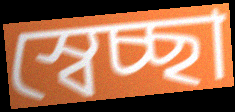
স্বেচ্ছা